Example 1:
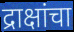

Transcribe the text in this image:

द्राक्षांचा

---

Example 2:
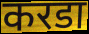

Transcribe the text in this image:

करडा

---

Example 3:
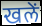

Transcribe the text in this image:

खलें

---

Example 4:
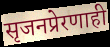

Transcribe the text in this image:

सृजनप्रेरणाही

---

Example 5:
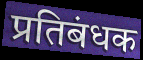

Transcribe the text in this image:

प्रतिबंधक